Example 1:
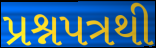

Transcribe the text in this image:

પ્રશ્નપત્રથી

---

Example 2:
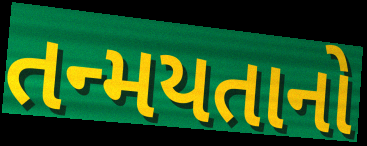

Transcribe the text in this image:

તન્મયતાનો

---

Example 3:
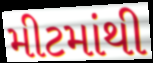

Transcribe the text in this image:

મીટમાંથી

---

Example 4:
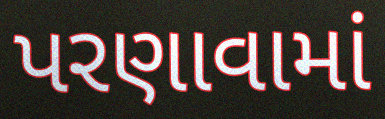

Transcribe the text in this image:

પરણાવામાં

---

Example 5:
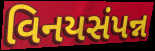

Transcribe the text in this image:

વિનયસંપન્ન